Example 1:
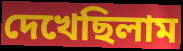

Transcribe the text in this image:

দেখেছিলাম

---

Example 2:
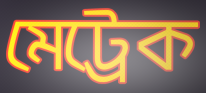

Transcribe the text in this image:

মেট্রেক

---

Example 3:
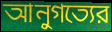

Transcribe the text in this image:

আনুগত্যের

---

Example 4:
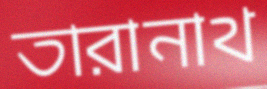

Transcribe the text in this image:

তারানাথ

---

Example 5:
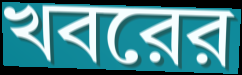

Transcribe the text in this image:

খবরের